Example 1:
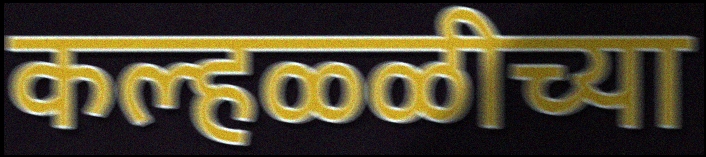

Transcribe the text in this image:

कल्हळ्ळीच्या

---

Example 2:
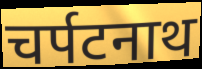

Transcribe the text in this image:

चर्पटनाथ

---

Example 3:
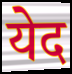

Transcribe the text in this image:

येद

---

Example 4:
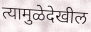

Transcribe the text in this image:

त्यामुळेदेखील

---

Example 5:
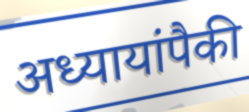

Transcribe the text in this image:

अध्यायांपैकी